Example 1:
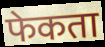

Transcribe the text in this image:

फेकता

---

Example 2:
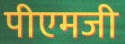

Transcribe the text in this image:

पीएमजी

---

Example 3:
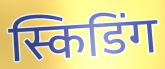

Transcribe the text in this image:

स्किडिंग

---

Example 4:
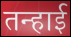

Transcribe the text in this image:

तन्हाई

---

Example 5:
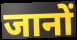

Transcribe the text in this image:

जानों